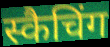
स्कैचिंग